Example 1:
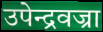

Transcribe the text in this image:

उपेन्द्रवज्रा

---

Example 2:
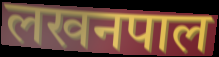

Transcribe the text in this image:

लखनपाल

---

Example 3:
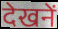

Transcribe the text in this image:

देखनें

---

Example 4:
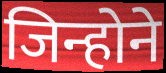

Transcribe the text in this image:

जिन्‍होने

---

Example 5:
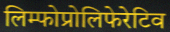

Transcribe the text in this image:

लिम्फोप्रोलिफेरेटिव